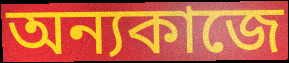
অন্যকাজে